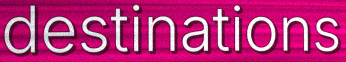
destinations